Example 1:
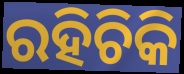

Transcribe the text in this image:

ରହିଚିକି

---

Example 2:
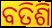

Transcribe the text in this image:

ବତିଶି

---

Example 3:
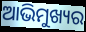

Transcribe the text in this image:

ଆଭିମୁଖ୍ୟର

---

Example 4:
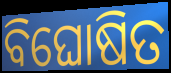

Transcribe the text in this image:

ବିଘୋଷିତ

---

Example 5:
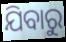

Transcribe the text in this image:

ଯିବାରୁ